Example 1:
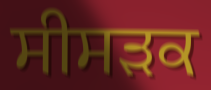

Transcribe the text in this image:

ਸੀਸੜਕ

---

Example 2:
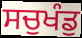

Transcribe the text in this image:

ਸਚੁਖੰਡੁ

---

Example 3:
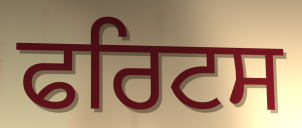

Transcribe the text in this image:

ਫਰਿਟਸ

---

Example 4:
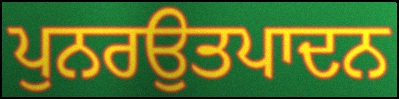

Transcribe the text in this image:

ਪੁਨਰਉਤਪਾਦਨ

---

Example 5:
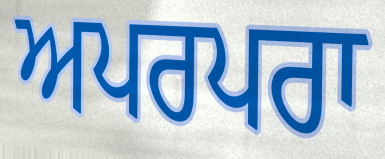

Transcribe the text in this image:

ਅਪਰਪਰਾ